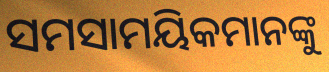
ସମସାମୟିକମାନଙ୍କୁ